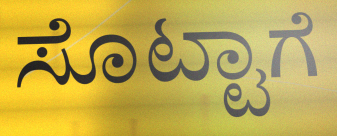
ಸೊಟ್ಟಾಗೆ